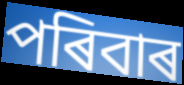
পৰিবাৰ